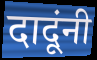
दादूंनी